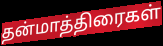
தன்மாத்திரைகள்